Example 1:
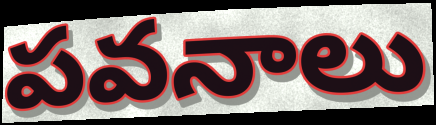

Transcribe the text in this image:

పవనాలు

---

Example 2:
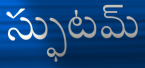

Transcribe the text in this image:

స్ఫుటమ్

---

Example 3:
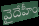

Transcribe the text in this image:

వైదేహీం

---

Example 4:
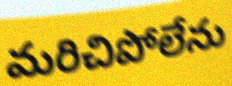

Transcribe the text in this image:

మరిచిపోలేను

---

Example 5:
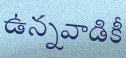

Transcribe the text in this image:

ఉన్నవాడికీ